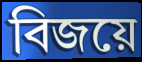
বিজয়ে